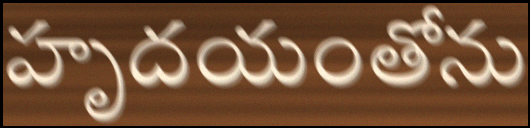
హృదయంతోను